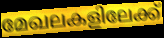
മേഖലകളിലേക്ക്